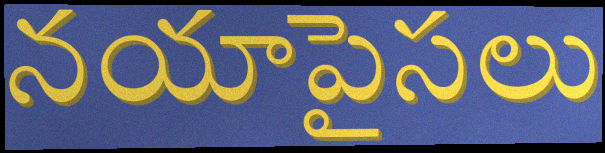
నయాపైసలు